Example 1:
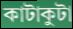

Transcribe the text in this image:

কাটাকুটা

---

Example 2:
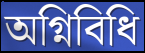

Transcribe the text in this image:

অগ্নিবিধি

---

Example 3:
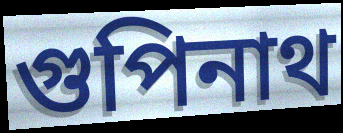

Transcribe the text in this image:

গুপিনাথ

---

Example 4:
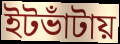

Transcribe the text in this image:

ইটভাঁটায়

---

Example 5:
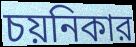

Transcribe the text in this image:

চয়নিকার